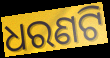
ଧରଣଟି